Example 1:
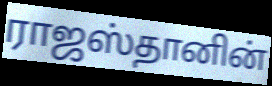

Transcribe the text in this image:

ராஜஸ்தானின்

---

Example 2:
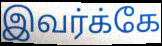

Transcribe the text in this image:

இவர்க்கே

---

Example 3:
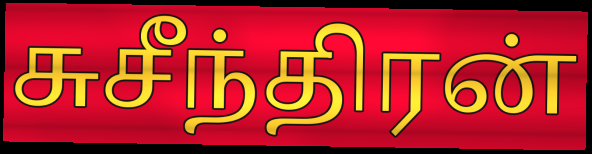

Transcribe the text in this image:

சுசீந்திரன்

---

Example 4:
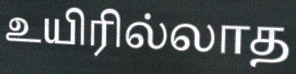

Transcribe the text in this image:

உயிரில்லாத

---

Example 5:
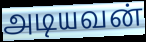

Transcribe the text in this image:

அடியவன்